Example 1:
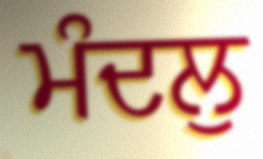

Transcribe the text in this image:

ਮੰਦਲੁ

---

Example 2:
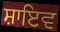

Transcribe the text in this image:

ਸ਼ਾਇਵ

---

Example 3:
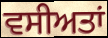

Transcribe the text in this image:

ਵਸੀਅਤਾਂ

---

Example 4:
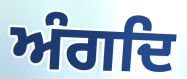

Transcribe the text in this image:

ਅੰਗਦਿ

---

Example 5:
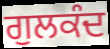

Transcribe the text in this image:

ਗੁਲਕੰਦ